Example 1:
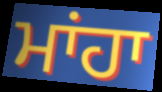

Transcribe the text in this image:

ਮਾਂਹਾ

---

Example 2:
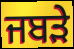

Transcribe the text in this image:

ਜਬੜੇ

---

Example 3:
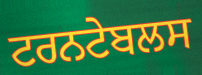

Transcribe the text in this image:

ਟਰਨਟੇਬਲਸ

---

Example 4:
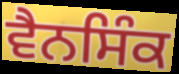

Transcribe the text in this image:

ਵੈਨਸਿੰਕ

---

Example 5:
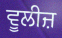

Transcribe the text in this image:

ਵੂਲੀਜ਼